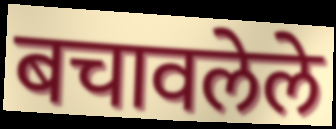
बचावलेले